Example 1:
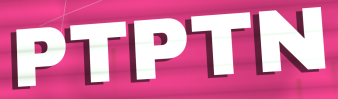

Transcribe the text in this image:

PTPTN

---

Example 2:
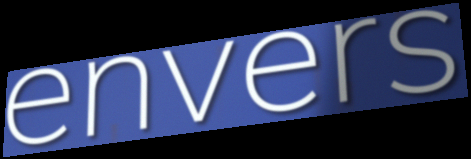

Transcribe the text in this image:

envers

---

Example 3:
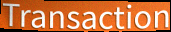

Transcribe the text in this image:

Transaction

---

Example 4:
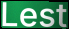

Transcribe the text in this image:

Lest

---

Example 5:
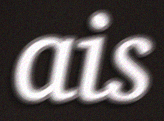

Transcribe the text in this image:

ais